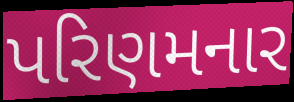
પરિણમનાર